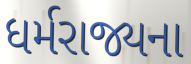
ધર્મરાજ્યના